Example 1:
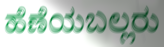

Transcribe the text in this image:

ಹೆಣೆಯಬಲ್ಲರು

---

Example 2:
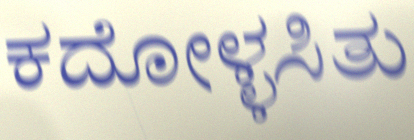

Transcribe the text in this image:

ಕದೋಳ್ಳಸಿತು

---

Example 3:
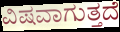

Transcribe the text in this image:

ವಿಷವಾಗುತ್ತದೆ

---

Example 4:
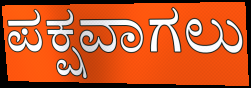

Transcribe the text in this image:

ಪಕ್ಷವಾಗಲು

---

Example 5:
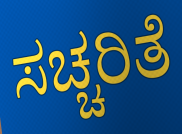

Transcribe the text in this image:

ಸಚ್ಚರಿತೆ